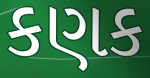
કણક